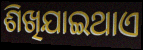
ଶିଖିଯାଇଥାଏ